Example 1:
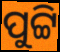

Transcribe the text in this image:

ପୁଟ୍ଟି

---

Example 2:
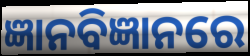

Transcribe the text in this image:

ଜ୍ଞାନବିଜ୍ଞାନରେ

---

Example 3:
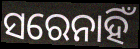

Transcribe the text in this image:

ସରେନାହିଁ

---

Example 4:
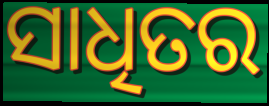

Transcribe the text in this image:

ସାଧିତର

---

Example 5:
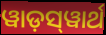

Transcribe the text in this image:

ୱାଡ଼ସ୍‌ୱାର୍ଥ